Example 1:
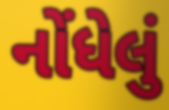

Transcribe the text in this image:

નોંધેલું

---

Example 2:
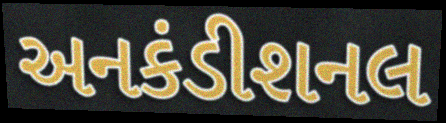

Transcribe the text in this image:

અનકંડીશનલ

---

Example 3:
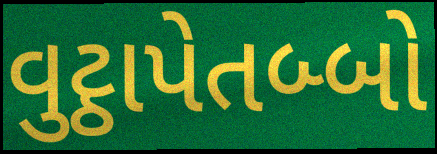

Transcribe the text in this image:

વુટ્ઠાપેતબ્બો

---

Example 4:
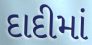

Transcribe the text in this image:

દાદીમાં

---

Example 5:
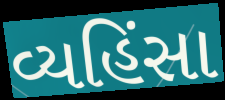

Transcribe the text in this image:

વ્યહિંસા